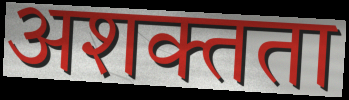
अशक्‍तता